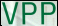
VPP